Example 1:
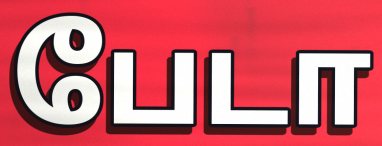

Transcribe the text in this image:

பேடா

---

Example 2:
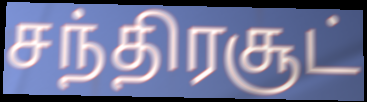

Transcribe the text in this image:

சந்திரசூட்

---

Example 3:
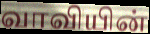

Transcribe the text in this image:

வாவியின்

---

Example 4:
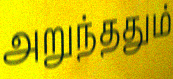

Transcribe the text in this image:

அறுந்ததும்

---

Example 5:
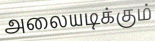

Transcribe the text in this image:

அலையடிக்கும்